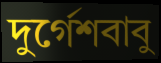
দুর্গেশবাবু